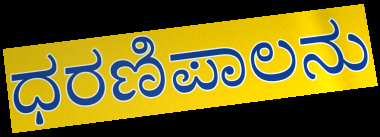
ಧರಣಿಪಾಲನು